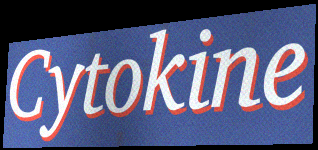
Cytokine